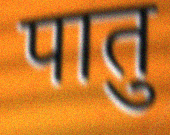
पातु